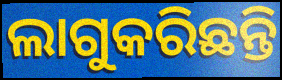
ଲାଗୁକରିଛନ୍ତି